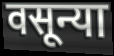
वसून्या